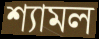
শ্যামল